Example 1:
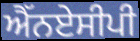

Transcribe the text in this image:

ਐੱਨਏਸੀਪੀ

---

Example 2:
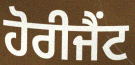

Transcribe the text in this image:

ਹੋਰੀਜੈਂਟ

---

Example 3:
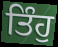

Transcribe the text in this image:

ਤਿੰਹੁ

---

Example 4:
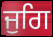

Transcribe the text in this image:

ਜੁਗਿ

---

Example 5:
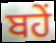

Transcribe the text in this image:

ਬਹੇਂ